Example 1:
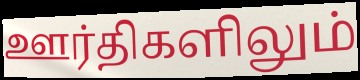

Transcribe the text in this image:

ஊர்திகளிலும்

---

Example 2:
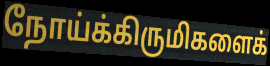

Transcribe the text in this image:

நோய்க்கிருமிகளைக்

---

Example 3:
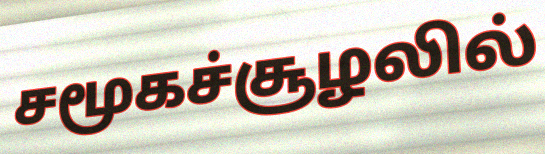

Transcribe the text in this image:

சமூகச்சூழலில்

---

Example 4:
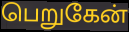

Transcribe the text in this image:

பெறுகேன்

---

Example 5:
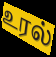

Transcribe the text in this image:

உரல்